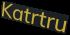
Katrtru